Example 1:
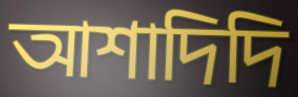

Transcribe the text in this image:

আশাদিদি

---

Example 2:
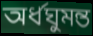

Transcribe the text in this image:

অর্ধঘুমন্ত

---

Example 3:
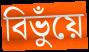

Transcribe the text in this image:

বিভুঁয়ে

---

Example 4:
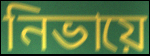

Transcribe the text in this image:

নিভায়ে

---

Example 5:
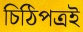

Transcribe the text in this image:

চিঠিপত্রই